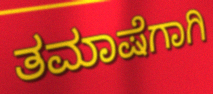
ತಮಾಷೆಗಾಗಿ